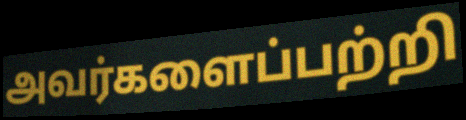
அவர்களைப்பற்றி